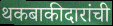
थकबाकीदारांची